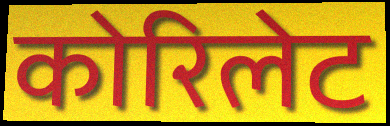
कोरिलेट